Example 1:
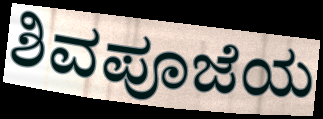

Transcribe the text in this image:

ಶಿವಪೂಜೆಯ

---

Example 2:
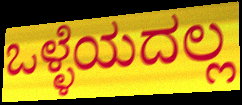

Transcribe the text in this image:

ಒಳ್ಳೆಯದಲ್ಲ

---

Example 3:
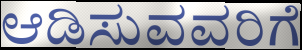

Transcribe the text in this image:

ಆಡಿಸುವವರಿಗೆ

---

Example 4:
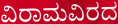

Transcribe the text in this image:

ವಿರಾಮವಿರದ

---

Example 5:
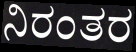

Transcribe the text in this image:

ನಿರಂತರ